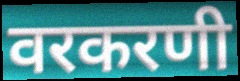
वरकरणी